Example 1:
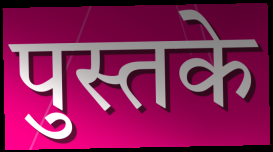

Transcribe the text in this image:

पुस्तके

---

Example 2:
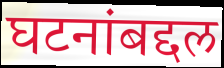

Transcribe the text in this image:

घटनांबद्दल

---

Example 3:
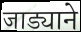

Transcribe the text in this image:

जाड्याने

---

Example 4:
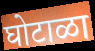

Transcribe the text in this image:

घोटाळा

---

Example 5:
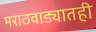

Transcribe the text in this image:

मराठवाड्यातही